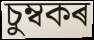
চুম্বকৰ